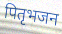
पितृभजन